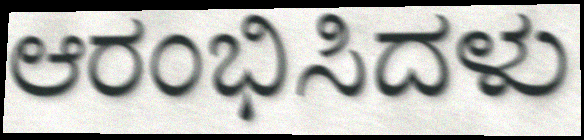
ಆರಂಭಿಸಿದಳು